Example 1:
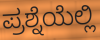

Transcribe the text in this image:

ಪ್ರಶ್ನೆಯೆಲ್ಲಿ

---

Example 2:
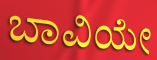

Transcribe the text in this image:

ಬಾವಿಯೇ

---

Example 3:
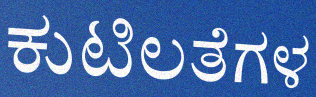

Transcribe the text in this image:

ಕುಟಿಲತೆಗಳ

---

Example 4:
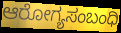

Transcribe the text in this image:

ಆರೋಗ್ಯಸಂಬಂಧಿ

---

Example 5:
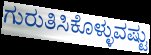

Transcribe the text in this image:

ಗುರುತಿಸಿಕೊಳ್ಳುವಷ್ಟು